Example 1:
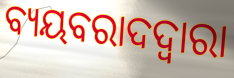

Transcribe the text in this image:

ବ୍ୟୟବରାଦଦ୍ଵାରା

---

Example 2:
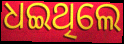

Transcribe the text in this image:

ଧଇଥିଲେ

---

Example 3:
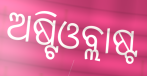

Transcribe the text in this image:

ଅଷ୍ଟିଓବ୍ଲାଷ୍ଟ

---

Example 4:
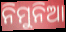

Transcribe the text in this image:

ନିମୁନିଆ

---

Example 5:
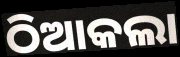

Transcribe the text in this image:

ଠିଆକଲା